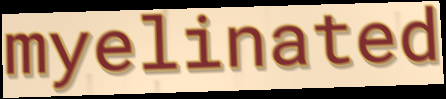
myelinated